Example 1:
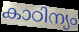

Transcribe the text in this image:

കാഠിന്യം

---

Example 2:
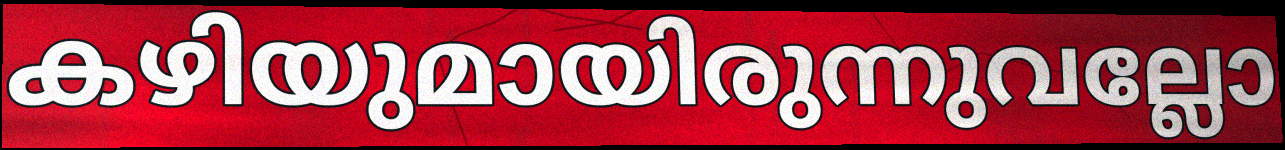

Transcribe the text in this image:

കഴിയുമായിരുന്നുവല്ലോ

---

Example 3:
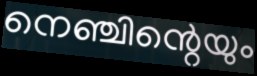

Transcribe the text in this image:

നെഞ്ചിന്റെയും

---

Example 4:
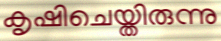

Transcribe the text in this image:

കൃഷിചെയ്തിരുന്നു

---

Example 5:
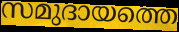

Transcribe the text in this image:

സമുദായത്തെ